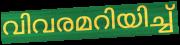
വിവരമറിയിച്ച്